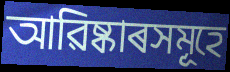
আৱিষ্কাৰসমূহে